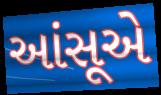
આંસૂએ